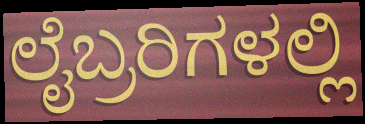
ಲೈಬ್ರರಿಗಳಲ್ಲಿ